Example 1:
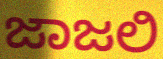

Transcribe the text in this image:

ಜಾಜಲಿ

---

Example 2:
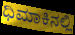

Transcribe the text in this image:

ಧಿಮಾಕಿನಲ್ಲಿ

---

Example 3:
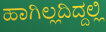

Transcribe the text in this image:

ಹಾಗಿಲ್ಲದಿದ್ದಲ್ಲಿ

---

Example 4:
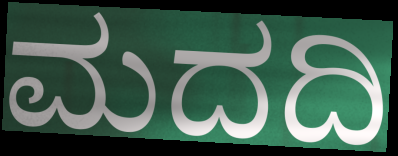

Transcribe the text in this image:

ಮದದಿ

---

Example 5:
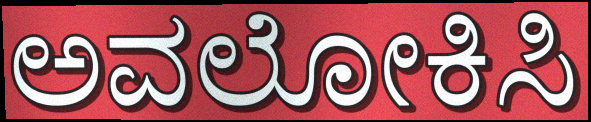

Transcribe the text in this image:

ಅವಲೋಕಿಸಿ